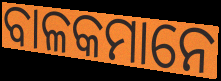
ବାଳକମାନେ